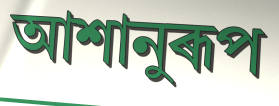
আশানুৰূপ